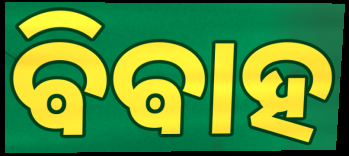
ଵିଵାହ